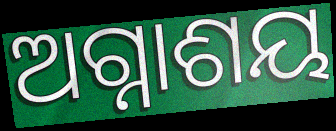
ଅଗ୍ନାଶୟ